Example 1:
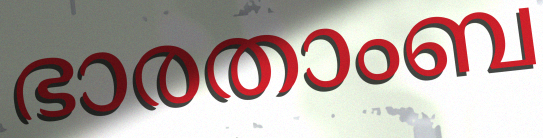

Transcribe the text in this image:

ഭാരതാംബ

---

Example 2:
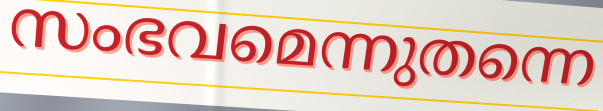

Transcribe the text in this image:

സംഭവമെന്നുതന്നെ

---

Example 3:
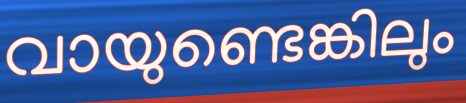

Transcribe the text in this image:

വായുണ്ടെങ്കിലും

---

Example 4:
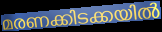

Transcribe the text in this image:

മരണക്കിടക്കയിൽ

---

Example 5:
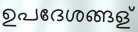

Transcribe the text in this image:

ഉപദേശങ്ങള്